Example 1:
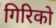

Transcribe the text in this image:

गिरिको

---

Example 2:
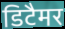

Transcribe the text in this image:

डिटैमर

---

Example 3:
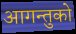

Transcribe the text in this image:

आगन्तुको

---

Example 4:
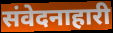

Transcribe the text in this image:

संवेदनाहारी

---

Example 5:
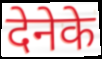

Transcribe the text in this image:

देनेके